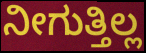
ನೀಗುತ್ತಿಲ್ಲ